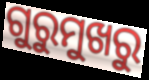
ଗୁରୁମୁଖରୁ